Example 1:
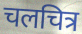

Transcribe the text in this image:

चलचित्र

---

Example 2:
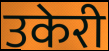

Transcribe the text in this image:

उकेरी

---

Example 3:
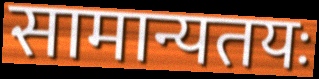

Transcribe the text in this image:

सामान्यतयः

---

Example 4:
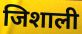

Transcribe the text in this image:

जिशाली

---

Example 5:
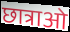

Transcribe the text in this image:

छात्राओ